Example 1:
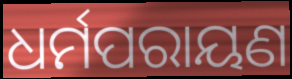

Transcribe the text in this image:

ଧର୍ମପରାୟଣ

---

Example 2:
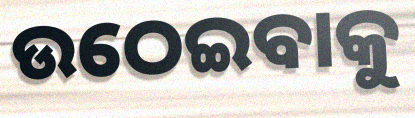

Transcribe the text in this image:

ଉଠେଇବାକୁ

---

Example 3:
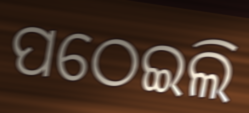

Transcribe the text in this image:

ପଠେଇଲି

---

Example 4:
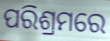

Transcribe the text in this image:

ପରିଶ୍ରମରେ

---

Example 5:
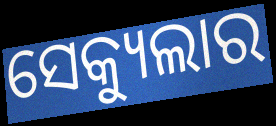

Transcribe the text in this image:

ସେକ୍ୟୁଲାର